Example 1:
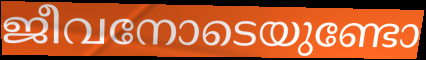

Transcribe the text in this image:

ജീവനോടെയുണ്ടോ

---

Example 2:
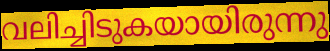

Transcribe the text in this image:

വലിച്ചിടുകയായിരുന്നു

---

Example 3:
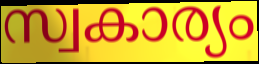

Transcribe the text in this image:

സ്വകാര്യം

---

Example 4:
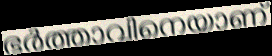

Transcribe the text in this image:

ഭർത്താവിനെയാണ്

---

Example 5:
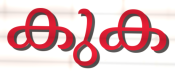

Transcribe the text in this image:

കുക